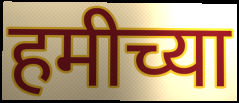
हमीच्या